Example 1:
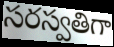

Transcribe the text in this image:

సరస్వతిగా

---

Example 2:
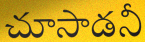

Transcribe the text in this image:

చూసాడనీ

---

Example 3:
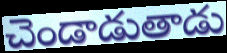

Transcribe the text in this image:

చెండాడుతాడు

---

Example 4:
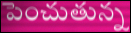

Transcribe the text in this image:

పెంచుతున్న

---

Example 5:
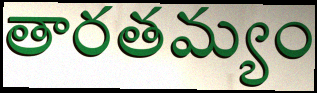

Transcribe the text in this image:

తారతమ్యం